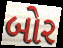
બોર